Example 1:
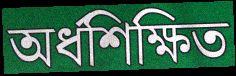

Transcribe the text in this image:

অর্ধশিক্ষিত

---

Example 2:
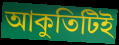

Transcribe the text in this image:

আকুতিটিই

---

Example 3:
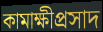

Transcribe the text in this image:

কামাক্ষীপ্রসাদ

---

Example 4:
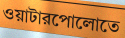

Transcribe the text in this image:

ওয়াটারপোলোতে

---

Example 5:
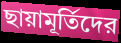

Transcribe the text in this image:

ছায়ামূর্তিদের